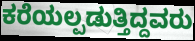
ಕರೆಯಲ್ಪಡುತ್ತಿದ್ದವರು